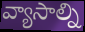
వ్యాసాల్ని